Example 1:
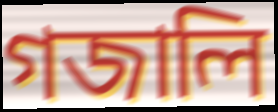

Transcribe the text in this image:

গজালি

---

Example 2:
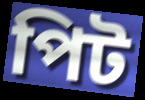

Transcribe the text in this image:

পিট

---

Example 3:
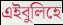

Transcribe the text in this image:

এইবুলিহে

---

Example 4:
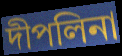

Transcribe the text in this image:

দীপলিনা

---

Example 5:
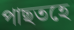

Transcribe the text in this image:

পাছতহে